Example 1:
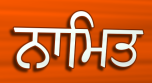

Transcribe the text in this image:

ਨਾਮਿਤ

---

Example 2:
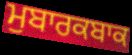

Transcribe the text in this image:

ਮੁਬਾਰਕਬਾਕ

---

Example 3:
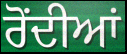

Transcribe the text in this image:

ਰੋਂਦੀਆਂ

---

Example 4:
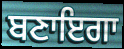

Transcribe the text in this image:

ਬਣਾਇਗਾ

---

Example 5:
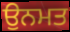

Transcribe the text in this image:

ਉਨਮਤ